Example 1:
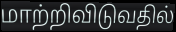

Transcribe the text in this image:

மாற்றிவிடுவதில்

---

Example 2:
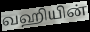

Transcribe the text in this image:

வஹியின்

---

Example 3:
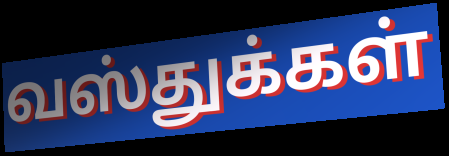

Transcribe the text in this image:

வஸ்துக்கள்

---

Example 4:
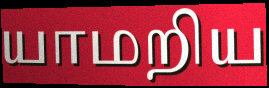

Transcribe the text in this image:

யாமறிய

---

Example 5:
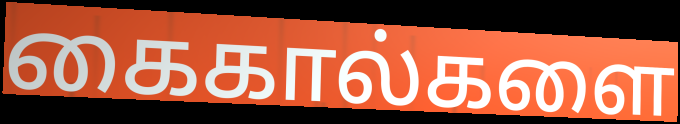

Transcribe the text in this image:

கைகால்களை